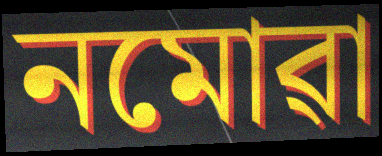
নমোৱা